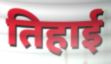
तिहाई